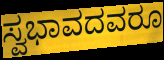
ಸ್ವಭಾವದವರೂ